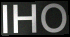
IHO